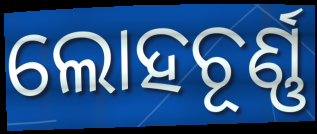
ଲୋହଚୂର୍ଣ୍ଣ